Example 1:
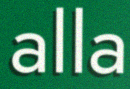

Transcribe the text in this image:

alla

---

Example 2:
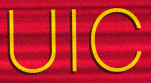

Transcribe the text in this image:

UIC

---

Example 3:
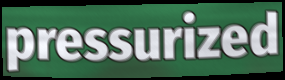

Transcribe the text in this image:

pressurized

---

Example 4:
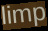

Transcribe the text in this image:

limp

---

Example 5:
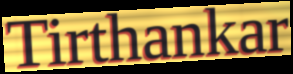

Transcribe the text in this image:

Tirthankar